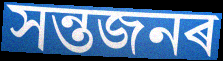
সন্তজনৰ